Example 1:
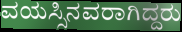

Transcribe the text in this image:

ವಯಸ್ಸಿನವರಾಗಿದ್ದರು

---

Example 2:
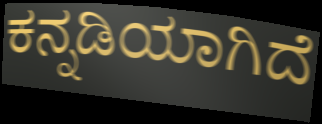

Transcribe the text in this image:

ಕನ್ನಡಿಯಾಗಿದೆ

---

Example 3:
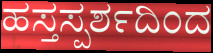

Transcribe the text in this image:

ಹಸ್ತಸ್ಪರ್ಶದಿಂದ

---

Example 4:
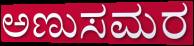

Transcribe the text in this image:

ಅಣುಸಮರ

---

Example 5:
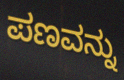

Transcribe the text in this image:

ಪಣವನ್ನು